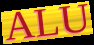
ALU